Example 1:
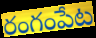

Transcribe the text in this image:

రంగంపేట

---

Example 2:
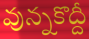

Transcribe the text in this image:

వున్నకొద్దీ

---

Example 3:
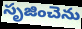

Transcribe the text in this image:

సృజించెను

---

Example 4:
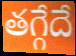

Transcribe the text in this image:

తగ్గేదే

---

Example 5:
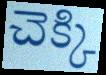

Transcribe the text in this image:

చెక్కి